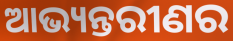
ଆଭ୍ୟନ୍ତରୀଣର